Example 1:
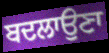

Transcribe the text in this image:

ਬਦਲਾਉਣਾ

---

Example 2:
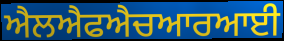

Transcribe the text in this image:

ਐਲਐਫਐਚਆਰਆਈ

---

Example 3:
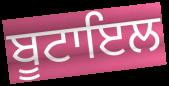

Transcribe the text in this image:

ਬੂਟਾਇਲ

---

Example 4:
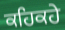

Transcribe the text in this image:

ਕਹਿਕਹੇ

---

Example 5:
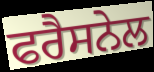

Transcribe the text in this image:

ਫਰੈਸਨੇਲ